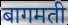
बागमती